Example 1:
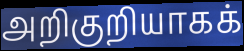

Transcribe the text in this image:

அறிகுறியாகக்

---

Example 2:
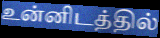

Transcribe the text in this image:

உன்னிடத்தில்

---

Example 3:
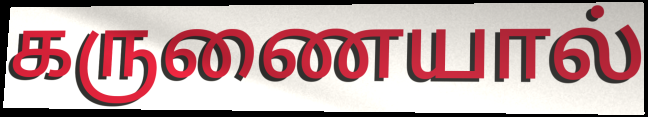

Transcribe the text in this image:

கருணையால்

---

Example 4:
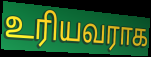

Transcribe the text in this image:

உரியவராக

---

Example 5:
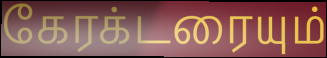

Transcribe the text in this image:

கேரக்டரையும்